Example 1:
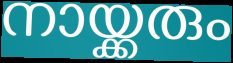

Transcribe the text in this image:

നായ്ക്കരും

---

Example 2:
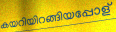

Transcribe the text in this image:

കയറിയിറങ്ങിയപ്പോള്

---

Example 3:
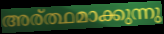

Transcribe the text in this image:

അര്ത്ഥമാക്കുന്നു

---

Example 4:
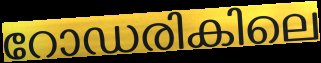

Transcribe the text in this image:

റോഡരികിലെ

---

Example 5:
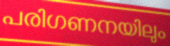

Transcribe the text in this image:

പരിഗണനയിലും